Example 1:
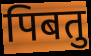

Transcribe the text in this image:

पिबतु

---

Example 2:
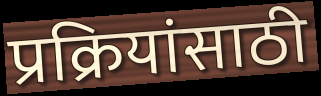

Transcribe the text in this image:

प्रक्रियांसाठी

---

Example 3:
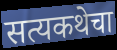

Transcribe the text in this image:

सत्यकथेचा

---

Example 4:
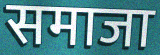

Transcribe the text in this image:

समाजा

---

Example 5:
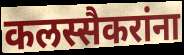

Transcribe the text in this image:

कलस्सैकरांना